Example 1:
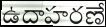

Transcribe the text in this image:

ఉదాహరణే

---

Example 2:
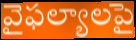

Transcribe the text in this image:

వైఫల్యాలపై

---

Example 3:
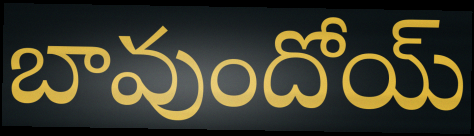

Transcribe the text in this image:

బావుందోయ్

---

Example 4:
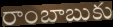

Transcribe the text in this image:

రాంబాబుకు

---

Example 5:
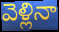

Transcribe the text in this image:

వెళ్లినా